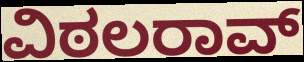
ವಿಠಲರಾವ್